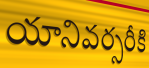
యానివర్సరీకి